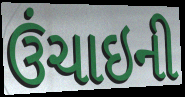
ઉંચાઇની